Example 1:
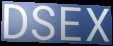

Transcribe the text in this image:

DSEX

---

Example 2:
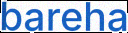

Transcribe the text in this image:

bareha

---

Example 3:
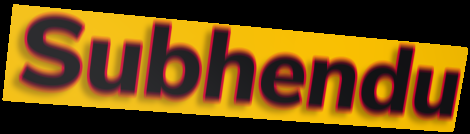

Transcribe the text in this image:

Subhendu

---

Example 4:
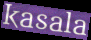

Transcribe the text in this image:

kasala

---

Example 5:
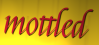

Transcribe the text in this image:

mottled